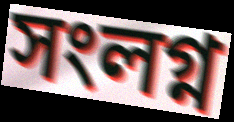
সংলগ্ন